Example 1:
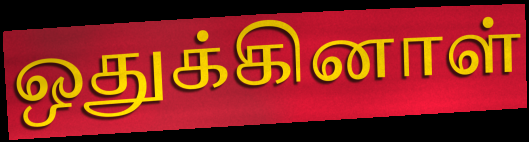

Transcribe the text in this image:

ஒதுக்கினாள்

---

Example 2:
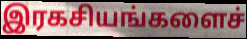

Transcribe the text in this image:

இரகசியங்களைச்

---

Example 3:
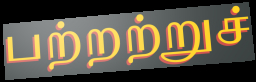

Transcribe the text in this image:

பற்றற்றுச்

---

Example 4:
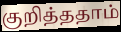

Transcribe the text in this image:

குறித்ததாம்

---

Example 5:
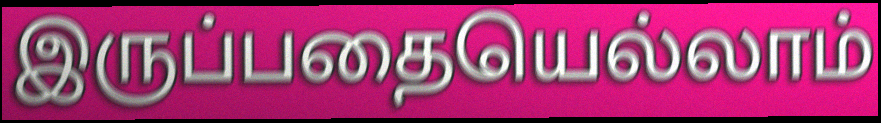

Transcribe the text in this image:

இருப்பதையெல்லாம்